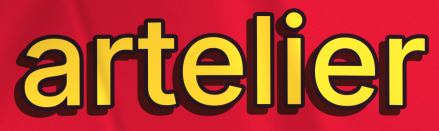
artelier